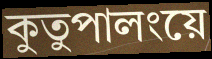
কুতুপালংয়ে